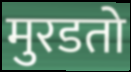
मुरडतो